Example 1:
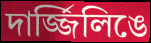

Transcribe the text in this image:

দার্জ্জিলিঙে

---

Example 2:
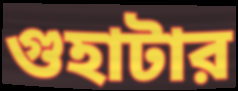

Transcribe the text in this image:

গুহাটার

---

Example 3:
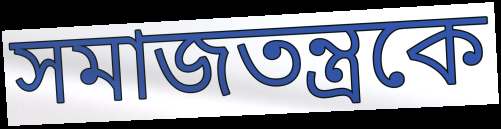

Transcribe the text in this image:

সমাজতন্ত্রকে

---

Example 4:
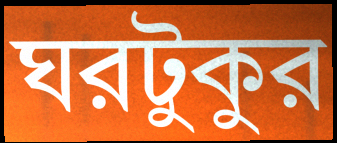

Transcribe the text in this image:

ঘরটুকুর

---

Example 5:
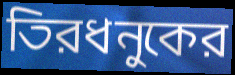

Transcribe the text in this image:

তিরধনুকের